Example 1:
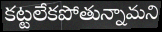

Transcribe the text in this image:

కట్టలేకపోతున్నామని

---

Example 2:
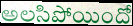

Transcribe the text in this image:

అలసిపోయిందో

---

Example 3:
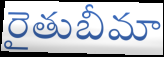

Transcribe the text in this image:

రైతుబీమా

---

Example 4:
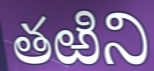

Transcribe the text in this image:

తఱిని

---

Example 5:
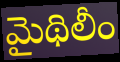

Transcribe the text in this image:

మైథిలీం